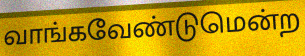
வாங்கவேண்டுமென்ற